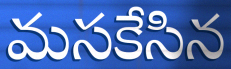
మసకేసిన